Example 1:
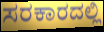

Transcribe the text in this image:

ಸರಕಾರದಲ್ಲಿ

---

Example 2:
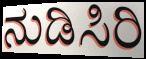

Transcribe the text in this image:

ನುಡಿಸಿರಿ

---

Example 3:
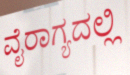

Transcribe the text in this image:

ವೈರಾಗ್ಯದಲ್ಲಿ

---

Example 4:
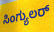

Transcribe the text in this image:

ಸಿಂಗ್ಯುಲರ್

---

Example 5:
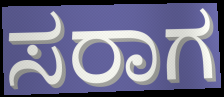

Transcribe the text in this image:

ಸರಾಗ